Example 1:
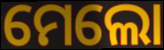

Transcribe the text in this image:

ମେଲୋ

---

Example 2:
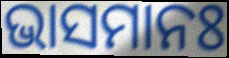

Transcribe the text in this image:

ଭାସମାନଃ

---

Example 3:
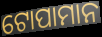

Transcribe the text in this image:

ଟୋପାମାନ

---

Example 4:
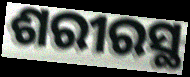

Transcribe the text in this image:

ଶରୀରସ୍ଥ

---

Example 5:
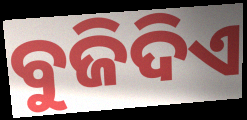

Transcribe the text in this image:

ବୁଜିଦିଏ